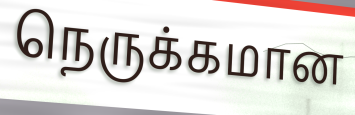
நெருக்கமான